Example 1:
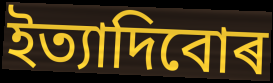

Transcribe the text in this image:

ইত্যাদিবোৰ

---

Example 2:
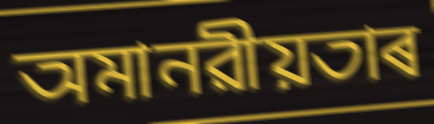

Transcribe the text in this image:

অমানৱীয়তাৰ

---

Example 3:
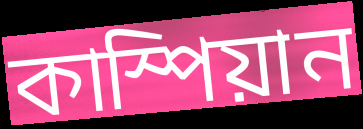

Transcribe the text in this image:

কাস্পিয়ান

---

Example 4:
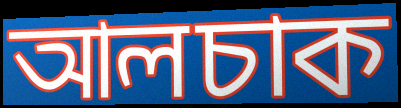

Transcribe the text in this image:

আলচাক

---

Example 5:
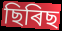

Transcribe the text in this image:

ছিৰিছ